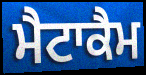
ਮੈਟਾਕੈਮ